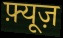
फ़्यूज़